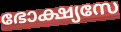
ഭോക്ഷ്യസേ